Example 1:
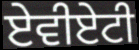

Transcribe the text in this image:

ਏਵੀਏਟੀ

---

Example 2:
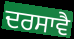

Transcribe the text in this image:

ਦਰਸਾਵੈ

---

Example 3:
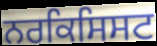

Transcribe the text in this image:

ਨਰਕਿਸਿਸਟ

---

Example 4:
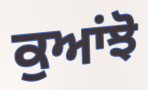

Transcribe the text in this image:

ਕੁਆਂਝੋ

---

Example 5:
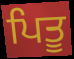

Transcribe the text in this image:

ਪਿਤੂ